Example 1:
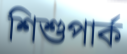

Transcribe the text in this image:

শিশুপার্ক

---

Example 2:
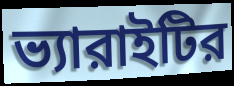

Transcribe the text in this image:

ভ্যারাইটির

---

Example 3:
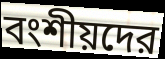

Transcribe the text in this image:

বংশীয়দের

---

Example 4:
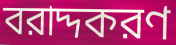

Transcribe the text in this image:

বরাদ্দকরণ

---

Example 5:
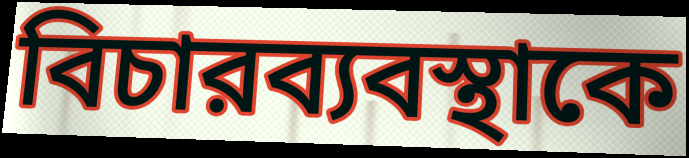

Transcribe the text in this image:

বিচারব্যবস্থাকে